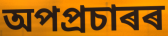
অপপ্ৰচাৰৰ